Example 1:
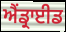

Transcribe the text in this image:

ਐਂਡ੍ਰਾਈਡ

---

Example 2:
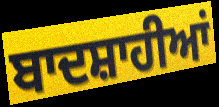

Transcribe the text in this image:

ਬਾਦਸ਼ਾਹੀਆਂ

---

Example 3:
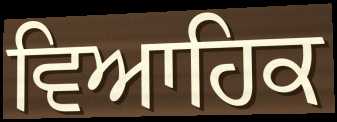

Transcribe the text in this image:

ਵਿਆਹਿਕ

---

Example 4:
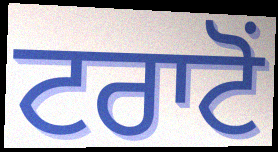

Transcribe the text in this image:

ਟਰਾਟੋਂ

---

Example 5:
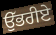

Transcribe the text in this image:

ਉੱਭਰੀਏ